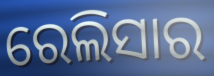
ରେଲିସାର